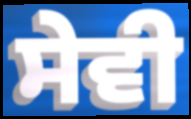
ਸੇਵੀ